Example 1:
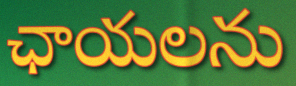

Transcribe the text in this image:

ఛాయలను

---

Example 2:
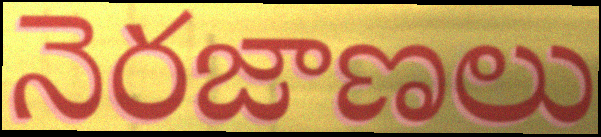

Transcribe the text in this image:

నెరజాణలు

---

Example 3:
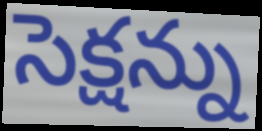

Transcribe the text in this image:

సెక్షన్ను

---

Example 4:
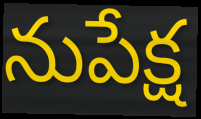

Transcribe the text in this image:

నుపేక్ష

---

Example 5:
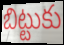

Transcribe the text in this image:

బిట్టుకు